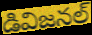
డివిజనల్